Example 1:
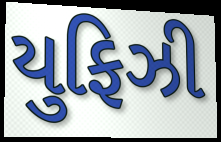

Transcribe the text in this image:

યુફિઝી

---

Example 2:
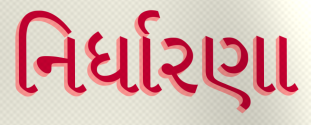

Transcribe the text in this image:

નિર્ધારણા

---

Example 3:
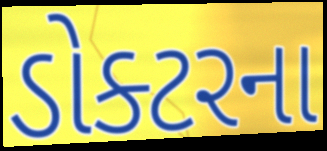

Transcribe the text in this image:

ડોક્ટરના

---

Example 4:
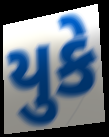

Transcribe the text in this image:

યુકે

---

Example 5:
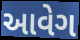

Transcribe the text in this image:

આવેગ